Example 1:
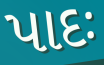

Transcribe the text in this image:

પાદઃ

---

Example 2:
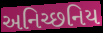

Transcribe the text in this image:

અનિચ્છનિય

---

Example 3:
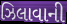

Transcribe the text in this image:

ઝિલાવાની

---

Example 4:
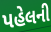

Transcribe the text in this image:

પહેલની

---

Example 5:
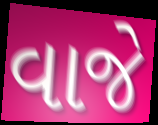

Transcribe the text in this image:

વાજે